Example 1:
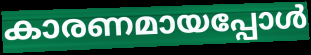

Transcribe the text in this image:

കാരണമായപ്പോൾ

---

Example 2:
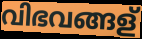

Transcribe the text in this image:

വിഭവങ്ങള്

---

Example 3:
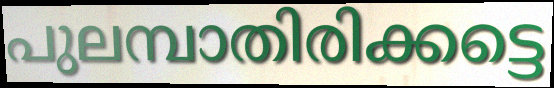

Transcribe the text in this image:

പുലമ്പാതിരിക്കട്ടെ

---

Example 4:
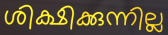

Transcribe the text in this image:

ശിക്ഷിക്കുന്നില്ല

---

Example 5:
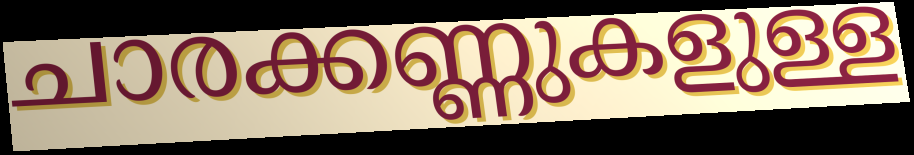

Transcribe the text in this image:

ചാരക്കണ്ണുകളുള്ള